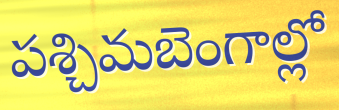
పశ్చిమబెంగాల్లో